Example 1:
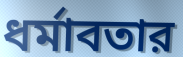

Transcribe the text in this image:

ধর্মাবতার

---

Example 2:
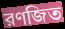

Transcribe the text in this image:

রণজিত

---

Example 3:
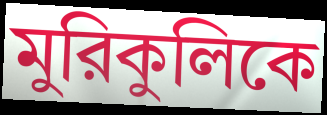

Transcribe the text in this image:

মুরিকুলিকে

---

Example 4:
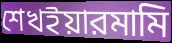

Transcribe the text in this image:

শেখইয়ারমামি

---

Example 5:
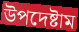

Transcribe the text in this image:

উপদেষ্টাম